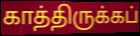
காத்திருக்கப்